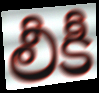
లీకీ